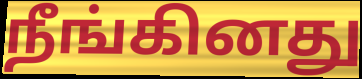
நீங்கினது